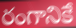
రంగానికే